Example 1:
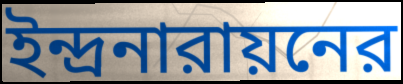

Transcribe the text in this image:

ইন্দ্রনারায়নের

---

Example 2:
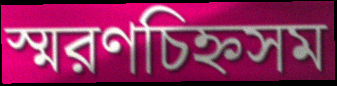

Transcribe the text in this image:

স্মরণচিহ্নসম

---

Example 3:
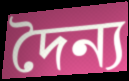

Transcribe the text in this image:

দৈন্য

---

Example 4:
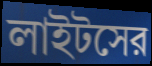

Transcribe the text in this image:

লাইটসের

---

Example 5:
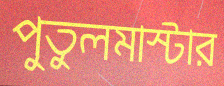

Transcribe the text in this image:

পুতুলমাস্টার